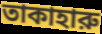
তাকাহারু